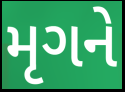
મૃગને